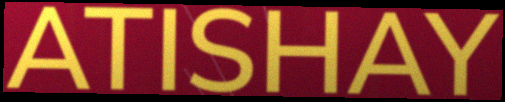
ATISHAY